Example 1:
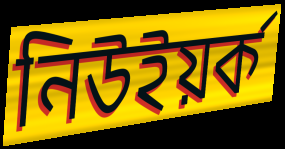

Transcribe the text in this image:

নিউইয়র্ক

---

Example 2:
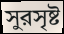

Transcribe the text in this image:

সুরসৃষ্ট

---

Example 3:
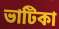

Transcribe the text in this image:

ভাটিকা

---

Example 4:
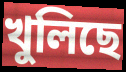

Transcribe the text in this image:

খুলিছে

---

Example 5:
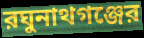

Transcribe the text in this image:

রঘুনাথগঞ্জের